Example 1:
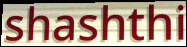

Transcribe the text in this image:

shashthi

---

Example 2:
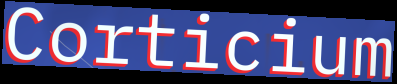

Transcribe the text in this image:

Corticium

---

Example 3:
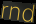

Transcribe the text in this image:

rnd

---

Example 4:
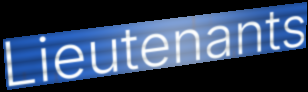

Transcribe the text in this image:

Lieutenants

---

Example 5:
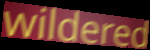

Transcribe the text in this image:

wildered